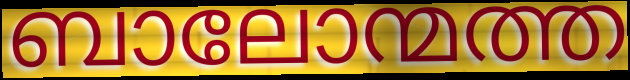
ബാലോന്മത്ത